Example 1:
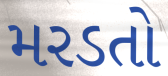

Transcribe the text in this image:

મરડતો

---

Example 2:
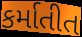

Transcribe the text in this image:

કર્માતીત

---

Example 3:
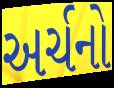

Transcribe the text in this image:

અર્ચનો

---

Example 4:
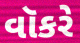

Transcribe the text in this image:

વૉકરે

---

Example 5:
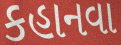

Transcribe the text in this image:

કહાનવા